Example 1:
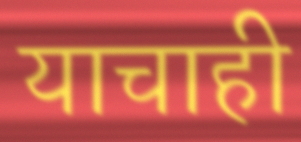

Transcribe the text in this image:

याचाही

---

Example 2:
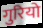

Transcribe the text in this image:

गुरियो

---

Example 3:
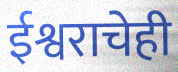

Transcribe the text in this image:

ईश्वराचेही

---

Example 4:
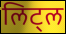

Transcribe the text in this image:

लिट्ल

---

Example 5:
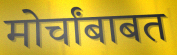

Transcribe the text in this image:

मोर्चांबाबत